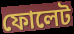
ফোলেট